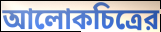
আলোকচিত্রের